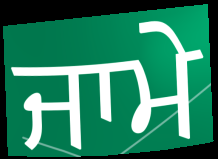
ਜਾਮੇ